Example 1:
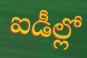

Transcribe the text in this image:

ఐడీల్లో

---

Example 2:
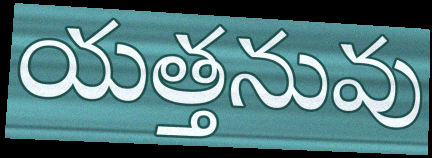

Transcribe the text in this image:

యత్తనువు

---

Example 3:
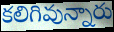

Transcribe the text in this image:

కలిగివున్నారు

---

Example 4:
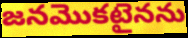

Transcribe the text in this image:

జనమొకటైనను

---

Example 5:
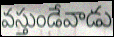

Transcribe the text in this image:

వస్తుండేవాడు